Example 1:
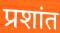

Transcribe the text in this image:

प्रशांत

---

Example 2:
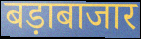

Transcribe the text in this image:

बड़ाबाजार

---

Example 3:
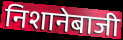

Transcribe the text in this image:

निशानेबाजी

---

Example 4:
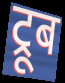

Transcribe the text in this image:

ट्रूब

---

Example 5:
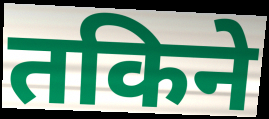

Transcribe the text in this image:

तकिने